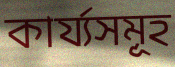
কাৰ্য্যসমূহ